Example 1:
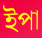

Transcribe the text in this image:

ইপা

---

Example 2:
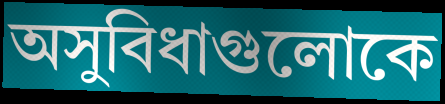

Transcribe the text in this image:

অসুবিধাগুলোকে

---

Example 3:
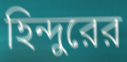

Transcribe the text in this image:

হিন্দুরের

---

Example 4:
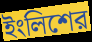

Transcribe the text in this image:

ইংলিশের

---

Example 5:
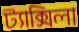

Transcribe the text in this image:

ট্যাক্সিলা